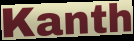
Kanth